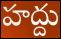
హద్దు